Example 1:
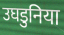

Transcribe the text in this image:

उघडुनिया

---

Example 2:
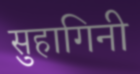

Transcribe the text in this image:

सुहागिनी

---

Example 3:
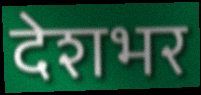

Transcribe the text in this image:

देशभर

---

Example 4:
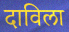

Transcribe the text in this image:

दाविला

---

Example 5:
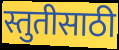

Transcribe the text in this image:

स्तुतीसाठी